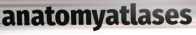
anatomyatlases